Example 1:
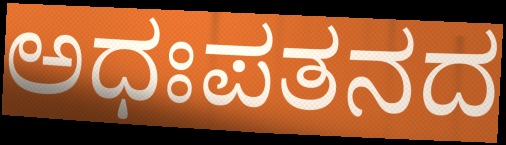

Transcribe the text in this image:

ಅಧಃಪತನದ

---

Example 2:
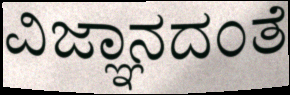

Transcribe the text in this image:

ವಿಜ್ಞಾನದಂತೆ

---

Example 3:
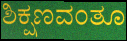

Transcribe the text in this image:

ಶಿಕ್ಷಣವಂತೂ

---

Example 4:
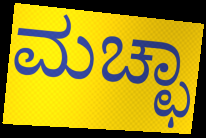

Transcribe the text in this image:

ಮಚ್ಛಾ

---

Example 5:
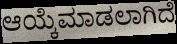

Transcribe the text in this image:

ಆಯ್ಕೆಮಾಡಲಾಗಿದೆ